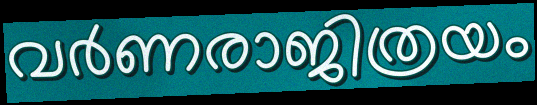
വർണരാജിത്രയം